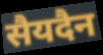
सैयदैन